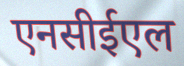
एनसीईएल